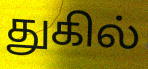
துகில்